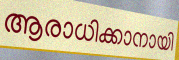
ആരാധിക്കാനായി